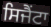
ਸਿਜੈਂਟਾ